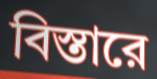
বিস্তারে